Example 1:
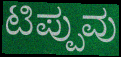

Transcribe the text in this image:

ಟಿಪ್ಪುವು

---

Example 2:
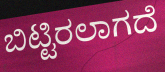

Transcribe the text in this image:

ಬಿಟ್ಟಿರಲಾಗದೆ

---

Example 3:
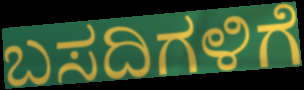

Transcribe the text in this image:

ಬಸದಿಗಳಿಗೆ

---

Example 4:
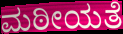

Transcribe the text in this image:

ಮಠೀಯತೆ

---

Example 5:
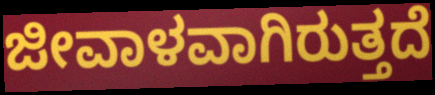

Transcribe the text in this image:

ಜೀವಾಳವಾಗಿರುತ್ತದೆ